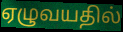
ஏழுவயதில்